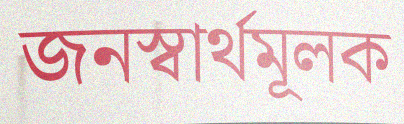
জনস্বার্থমূলক